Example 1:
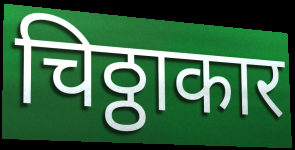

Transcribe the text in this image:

चिठ्ठाकार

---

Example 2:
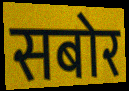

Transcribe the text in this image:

सबोर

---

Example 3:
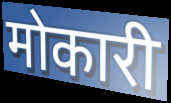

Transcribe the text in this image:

मोकारी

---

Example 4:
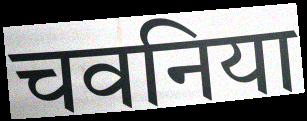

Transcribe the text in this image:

चवनिया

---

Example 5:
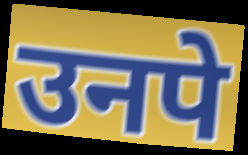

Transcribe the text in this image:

उनपे